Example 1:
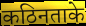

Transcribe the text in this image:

कठिनताके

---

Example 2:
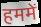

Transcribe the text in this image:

हममें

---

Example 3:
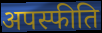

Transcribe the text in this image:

अपस्फीति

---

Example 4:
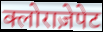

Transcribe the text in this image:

क्लोराज़ेपेट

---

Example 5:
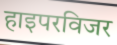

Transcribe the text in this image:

हाइपरविजर